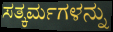
ಸತ್ಕರ್ಮಗಳನ್ನು